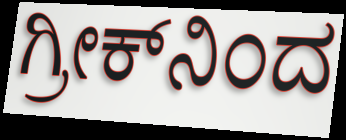
ಗ್ರೀಕ್‌ನಿಂದ